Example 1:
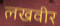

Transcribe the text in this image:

लखवीर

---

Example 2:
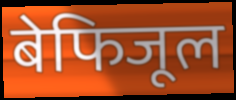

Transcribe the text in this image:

बेफिजूल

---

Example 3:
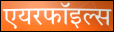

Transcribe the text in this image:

एयरफॉइल्स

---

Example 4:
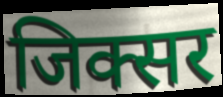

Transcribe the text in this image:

जिक्सर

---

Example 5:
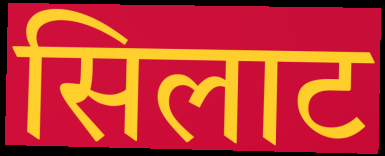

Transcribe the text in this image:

सिलाट